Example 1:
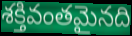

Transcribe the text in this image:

శక్తివంతమైనది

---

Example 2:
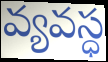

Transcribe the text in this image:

వ్యవస్ధ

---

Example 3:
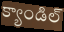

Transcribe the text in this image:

క్యాండిల్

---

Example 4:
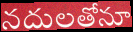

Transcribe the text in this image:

నదులతోనూ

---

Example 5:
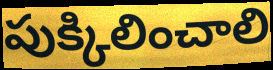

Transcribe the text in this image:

పుక్కిలించాలి